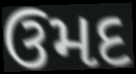
ઉમદ